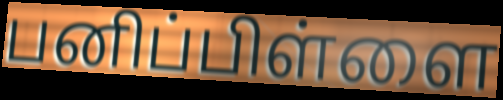
பனிப்பிள்ளை